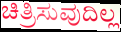
ಚಿತ್ರಿಸುವುದಿಲ್ಲ